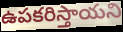
ఉపకరిస్తాయని